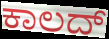
ಕಾಲದ್